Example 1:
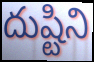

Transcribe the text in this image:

దుష్టిని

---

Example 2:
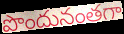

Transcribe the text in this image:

పొందునంతగా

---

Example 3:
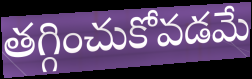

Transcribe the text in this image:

తగ్గించుకోవడమే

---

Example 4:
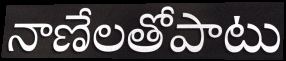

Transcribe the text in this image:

నాణేలతోపాటు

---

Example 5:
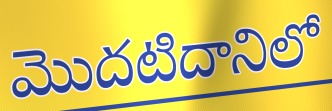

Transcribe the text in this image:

మొదటిదానిలో